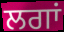
ਲਗਾਂ